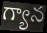
గ్యాన